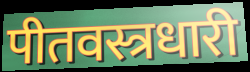
पीतवस्त्रधारी